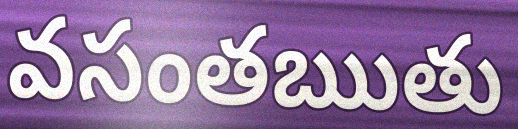
వసంతఋతు